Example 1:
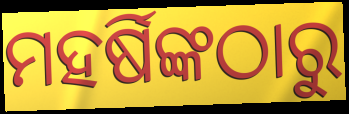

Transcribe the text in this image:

ମହର୍ଷିଙ୍କଠାରୁ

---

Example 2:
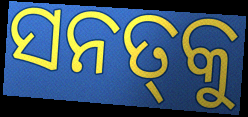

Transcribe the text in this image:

ସନତ୍‍କୁ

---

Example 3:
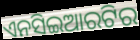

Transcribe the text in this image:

ଏନସିଇଆରଟିର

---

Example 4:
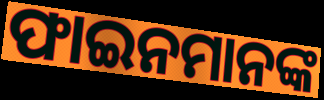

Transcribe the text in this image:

ଫାଇନମାନଙ୍କ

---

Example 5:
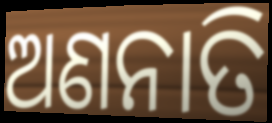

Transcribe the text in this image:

ଅଣନାତି